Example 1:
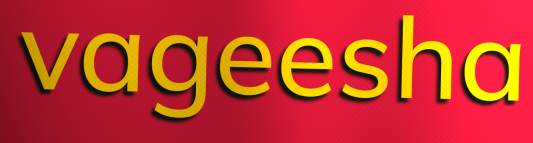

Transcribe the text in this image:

vageesha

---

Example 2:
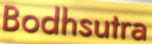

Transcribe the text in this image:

Bodhsutra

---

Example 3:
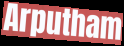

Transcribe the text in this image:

Arputham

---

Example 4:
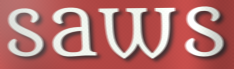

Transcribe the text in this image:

saws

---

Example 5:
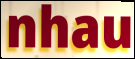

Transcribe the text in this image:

nhau